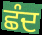
ਛੰਦ